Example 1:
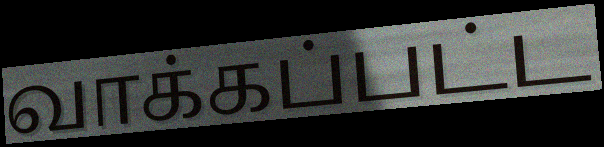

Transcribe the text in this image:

வாக்கப்பட்ட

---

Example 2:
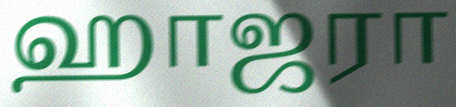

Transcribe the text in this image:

ஹாஜரா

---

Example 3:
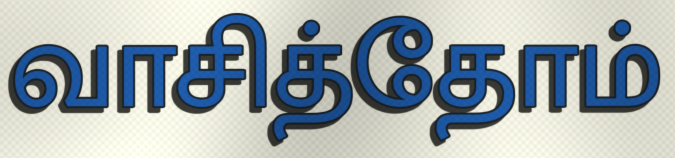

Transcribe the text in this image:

வாசித்தோம்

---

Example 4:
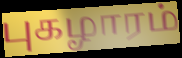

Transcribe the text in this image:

புகழாரம்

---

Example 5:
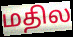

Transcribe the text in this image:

மதில